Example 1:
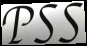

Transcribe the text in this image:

PSS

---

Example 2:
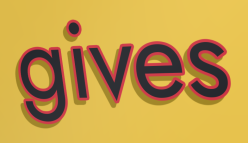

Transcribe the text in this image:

gives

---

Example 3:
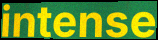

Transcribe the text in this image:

intense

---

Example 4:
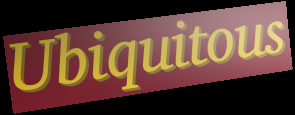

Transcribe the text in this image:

Ubiquitous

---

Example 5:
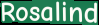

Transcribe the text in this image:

Rosalind